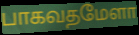
பாகவதமேளா